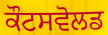
ਕੌਟਸਵੋਲਡ